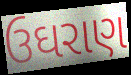
ઉઘરાણ